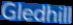
Gledhill